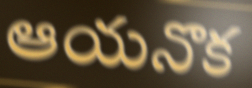
ఆయనొక